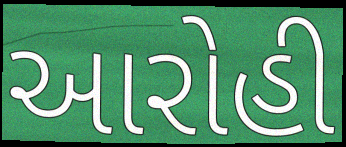
આરોહી